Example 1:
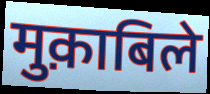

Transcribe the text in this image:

मुक़ाबिले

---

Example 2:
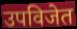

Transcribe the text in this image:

उपविजेत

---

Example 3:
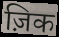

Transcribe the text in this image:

ज़िक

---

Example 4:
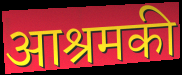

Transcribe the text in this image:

आश्रमकी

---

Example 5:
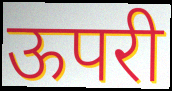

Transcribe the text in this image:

ऊपरी